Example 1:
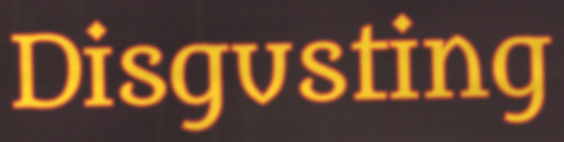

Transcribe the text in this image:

Disgusting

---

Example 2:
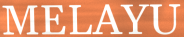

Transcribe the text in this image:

MELAYU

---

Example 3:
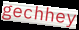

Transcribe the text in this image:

gechhey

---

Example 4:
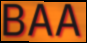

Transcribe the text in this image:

BAA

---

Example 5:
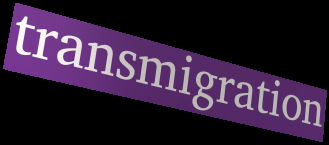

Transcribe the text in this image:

transmigration